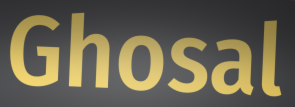
Ghosal